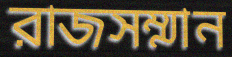
রাজসম্মান